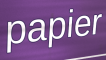
papier